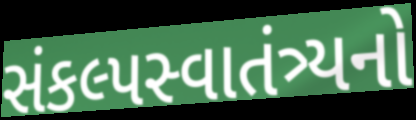
સંકલ્પસ્વાતંત્ર્યનો